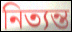
নিত্যন্ত